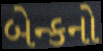
બેન્કનો